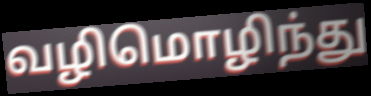
வழிமொழிந்து